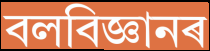
বলবিজ্ঞানৰ